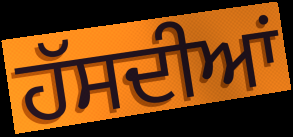
ਹੱਸਦੀਆਂ